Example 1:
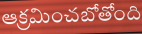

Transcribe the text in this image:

ఆక్రమించబోతోంది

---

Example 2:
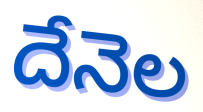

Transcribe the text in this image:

దేనెల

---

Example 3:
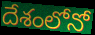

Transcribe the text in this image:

దేశంలోనో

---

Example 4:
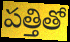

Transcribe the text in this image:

పత్తితో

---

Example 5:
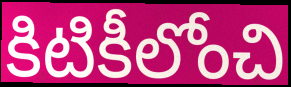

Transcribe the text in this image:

కిటికీలోంచి